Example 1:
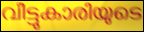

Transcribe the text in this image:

വീട്ടുകാരിയുടെ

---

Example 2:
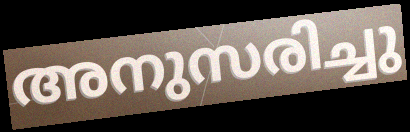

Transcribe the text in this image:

അനുസരിച്ചു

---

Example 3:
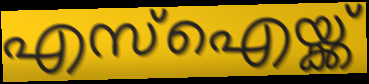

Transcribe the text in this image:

എസ്ഐയ്ക്ക്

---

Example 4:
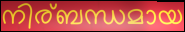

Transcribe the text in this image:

നിര്ബന്ധമായ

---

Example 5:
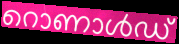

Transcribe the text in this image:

റൊണാൾഡ്